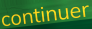
continuer